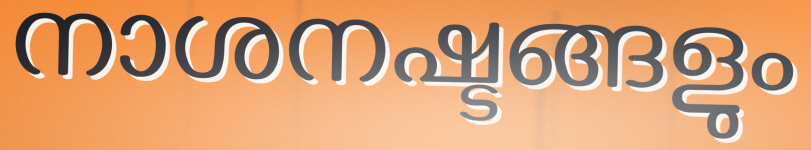
നാശനഷ്ടങ്ങളും